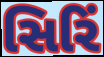
સિરિં